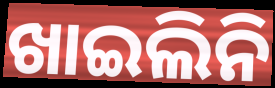
ଖାଇଲିନି